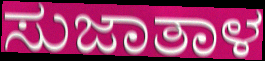
ಸುಜಾತಾಳ